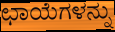
ಛಾಯೆಗಳನ್ನು